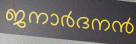
ജനാർദനൻ